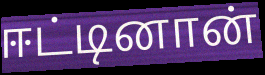
ஈட்டினான்